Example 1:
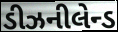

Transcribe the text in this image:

ડીઝનીલેન્ડ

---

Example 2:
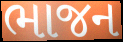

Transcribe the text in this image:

ભાજન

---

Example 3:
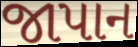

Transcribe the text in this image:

જાપાન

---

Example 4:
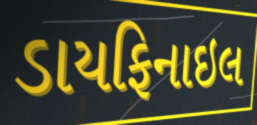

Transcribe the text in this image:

ડાયફિનાઇલ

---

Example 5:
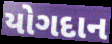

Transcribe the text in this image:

યોગદાન